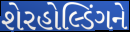
શેરહોલ્ડિંગને